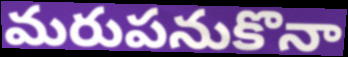
మరుపనుకొనా